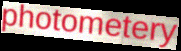
photometery